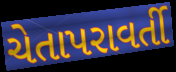
ચેતાપરાવર્તી